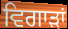
ਵਿਗਾੜਾਂ